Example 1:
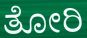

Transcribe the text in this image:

ತೋರಿ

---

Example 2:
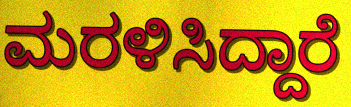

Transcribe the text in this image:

ಮರಳಿಸಿದ್ದಾರೆ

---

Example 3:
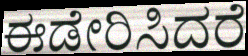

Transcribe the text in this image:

ಈಡೇರಿಸಿದರೆ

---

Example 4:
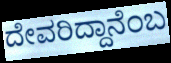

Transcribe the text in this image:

ದೇವರಿದ್ದಾನೆಂಬ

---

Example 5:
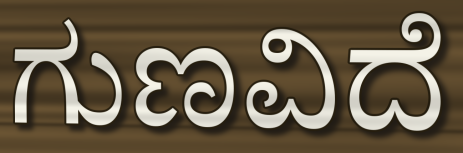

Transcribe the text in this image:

ಗುಣವಿದೆ